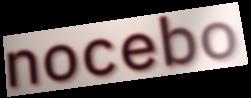
nocebo